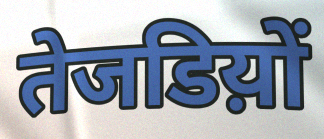
तेजडिय़ों